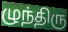
ழுந்திரு